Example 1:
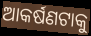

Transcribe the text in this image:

ଆକର୍ଷଣଟାକୁ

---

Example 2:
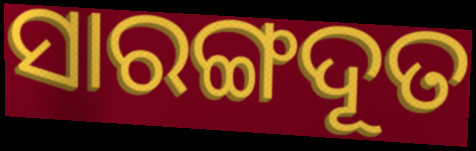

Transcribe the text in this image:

ସାରଙ୍ଗଦୂତ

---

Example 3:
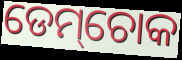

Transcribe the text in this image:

ଡେମ୍‌ଚୋକ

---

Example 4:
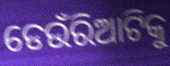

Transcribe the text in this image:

ଡେଉଁରିଆଟିକୁ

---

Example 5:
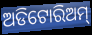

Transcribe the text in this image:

ଅଡିଟୋରିଅମ୍